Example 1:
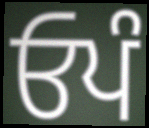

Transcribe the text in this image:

ਓਪੰ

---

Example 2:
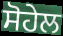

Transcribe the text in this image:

ਸੋਹੇਲ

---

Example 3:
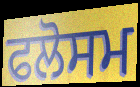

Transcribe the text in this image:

ਫਲੋਸਮ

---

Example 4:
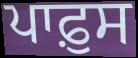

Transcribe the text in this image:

ਪਾਫ਼ੁਸ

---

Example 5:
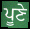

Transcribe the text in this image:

ਪੂਣੇ